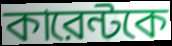
কারেন্টকে